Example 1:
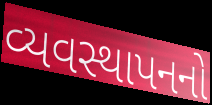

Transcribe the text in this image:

વ્યવસ્થાપનનો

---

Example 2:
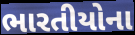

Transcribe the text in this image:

ભારતીયોના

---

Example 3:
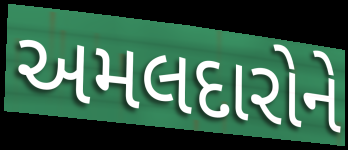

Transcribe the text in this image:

અમલદારોને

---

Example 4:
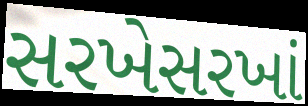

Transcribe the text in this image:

સરખેસરખાં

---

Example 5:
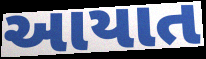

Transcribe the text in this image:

આયાત